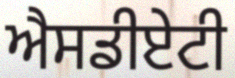
ਐਸਡੀਏਟੀ